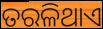
ତରଳିଥାଏ